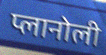
प्लानोली